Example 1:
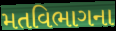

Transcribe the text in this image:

મતવિભાગના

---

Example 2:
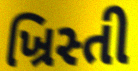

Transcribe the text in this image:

ખ્રિસ્તી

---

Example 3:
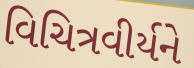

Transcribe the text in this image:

વિચિત્રવીર્યને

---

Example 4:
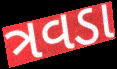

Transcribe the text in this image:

ત્રવડા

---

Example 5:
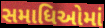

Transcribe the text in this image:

સમાધિઓમાં